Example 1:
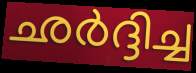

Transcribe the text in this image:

ഛർദ്ദിച്ച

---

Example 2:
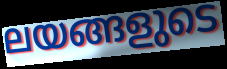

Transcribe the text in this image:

ലയങ്ങളുടെ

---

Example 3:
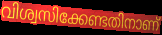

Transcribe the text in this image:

വിശ്വസിക്കേണ്ടതിനാണ്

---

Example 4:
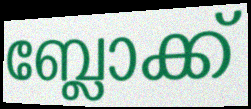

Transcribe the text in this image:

ബ്ലോക്ക്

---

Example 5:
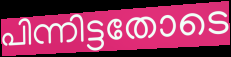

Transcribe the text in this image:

പിന്നിട്ടതോടെ